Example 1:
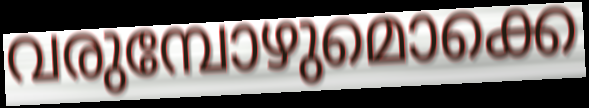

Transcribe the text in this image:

വരുമ്പോഴുമൊക്കെ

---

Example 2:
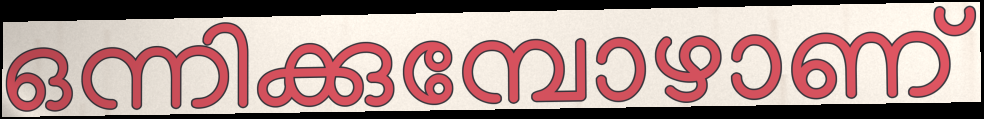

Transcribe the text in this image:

ഒന്നിക്കുമ്പോഴാണ്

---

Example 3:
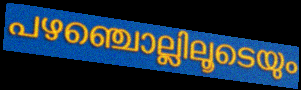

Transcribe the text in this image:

പഴഞ്ചൊല്ലിലൂടെയും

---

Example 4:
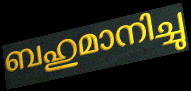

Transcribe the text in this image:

ബഹുമാനിച്ചു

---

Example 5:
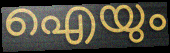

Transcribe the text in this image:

ഐയും